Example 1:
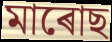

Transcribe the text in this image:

মাৰোছ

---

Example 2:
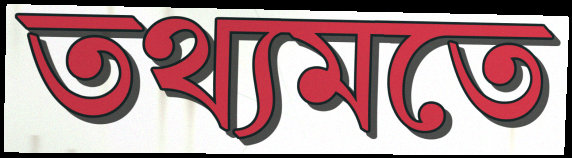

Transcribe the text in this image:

তথ্যমতে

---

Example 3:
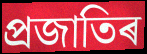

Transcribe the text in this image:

প্ৰজাতিৰ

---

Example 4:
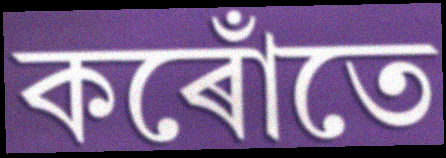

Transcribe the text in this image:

কৰোঁতে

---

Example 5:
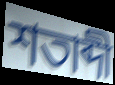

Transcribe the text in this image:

শতাব্দী